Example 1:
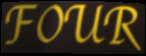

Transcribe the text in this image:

FOUR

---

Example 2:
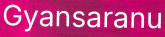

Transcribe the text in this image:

Gyansaranu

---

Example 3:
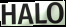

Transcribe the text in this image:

HALO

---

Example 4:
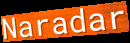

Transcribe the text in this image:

Naradar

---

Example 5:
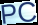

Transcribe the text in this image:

PC